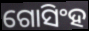
ଗୋସିଂହ